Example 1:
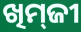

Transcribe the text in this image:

ଖିମ୍‌ଜୀ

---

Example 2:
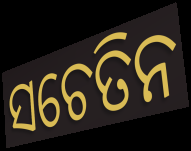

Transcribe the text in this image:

ସଚେତିନ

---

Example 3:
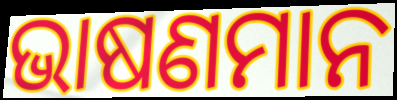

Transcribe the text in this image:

ଭାଷଣମାନ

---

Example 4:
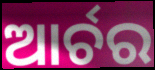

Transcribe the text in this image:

ଆର୍ଚର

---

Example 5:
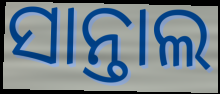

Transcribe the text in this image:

ସାନ୍ତାଲ